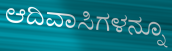
ಆದಿವಾಸಿಗಳನ್ನೂ